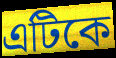
এটিকে